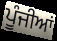
ਪੂੰਜੀਆਂ